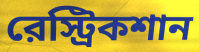
রেস্ট্রিকশান